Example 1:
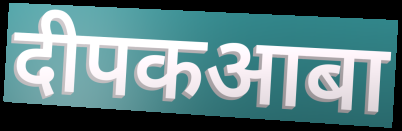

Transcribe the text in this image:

दीपकआबा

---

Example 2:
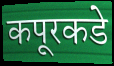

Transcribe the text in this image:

कपूरकडे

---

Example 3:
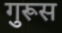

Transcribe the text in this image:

गुरूस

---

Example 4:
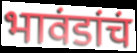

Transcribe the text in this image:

भावंडांचं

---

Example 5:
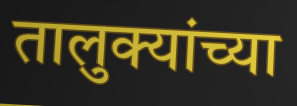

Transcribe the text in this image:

तालुक्यांच्या